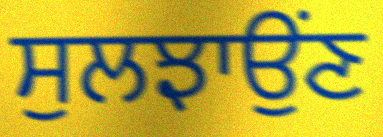
ਸੁਲਝਾਉਂਣ